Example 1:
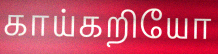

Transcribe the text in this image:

காய்கறியோ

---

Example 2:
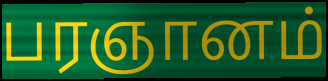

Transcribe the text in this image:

பரஞானம்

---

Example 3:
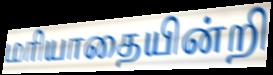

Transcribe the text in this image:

மரியாதையின்றி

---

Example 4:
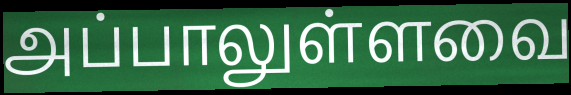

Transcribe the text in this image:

அப்பாலுள்ளவை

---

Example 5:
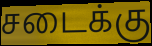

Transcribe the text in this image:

சடைக்கு